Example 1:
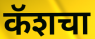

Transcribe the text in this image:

कॅशचा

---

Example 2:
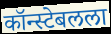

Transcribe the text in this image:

कॉन्स्टेबलला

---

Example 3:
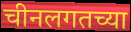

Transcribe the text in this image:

चीनलगतच्या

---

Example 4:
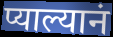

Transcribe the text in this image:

प्याल्यानं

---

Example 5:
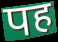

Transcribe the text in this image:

पह